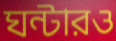
ঘন্টারও